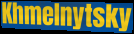
Khmelnytsky